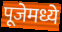
पूजेमध्ये